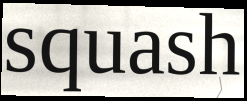
squash